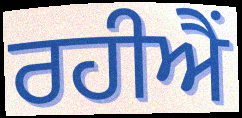
ਰਹੀਐਂ